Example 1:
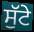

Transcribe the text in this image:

ਸੁੱਟੇ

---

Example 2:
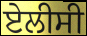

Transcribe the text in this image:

ਏਲੀਸੀ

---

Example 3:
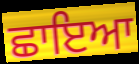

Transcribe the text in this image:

ਛਾਇਆ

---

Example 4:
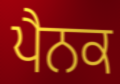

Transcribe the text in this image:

ਪੈਨਕ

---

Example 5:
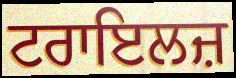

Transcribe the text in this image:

ਟਰਾਇਲਜ਼